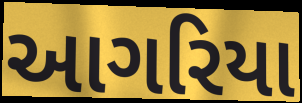
આગરિયા